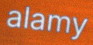
alamy